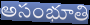
అసంభూతి